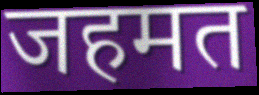
जहमत